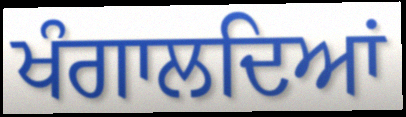
ਖੰਗਾਲਦਿਆਂ